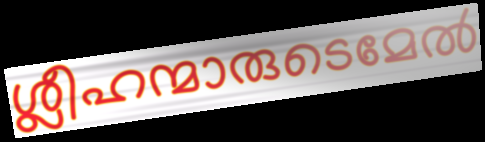
ശ്ലീഹന്മാരുടെമേൽ